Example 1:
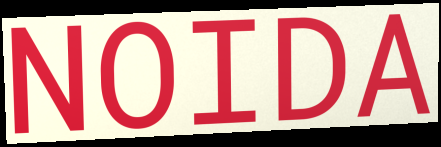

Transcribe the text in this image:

NOIDA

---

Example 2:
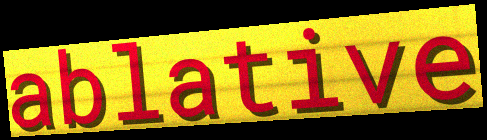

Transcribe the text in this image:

ablative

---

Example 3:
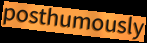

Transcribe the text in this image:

posthumously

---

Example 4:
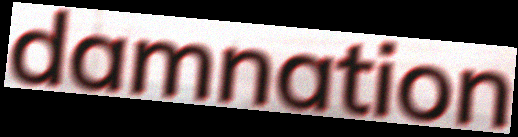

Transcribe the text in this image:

damnation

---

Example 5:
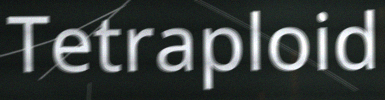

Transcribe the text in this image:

Tetraploid